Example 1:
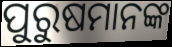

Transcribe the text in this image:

ପୁରୁଷମାନଙ୍କ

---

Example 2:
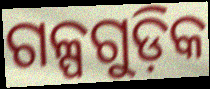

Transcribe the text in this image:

ଗଳ୍ପଗୁଡ଼ିକ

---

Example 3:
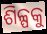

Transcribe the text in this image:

ଶିଳ୍ପକୁ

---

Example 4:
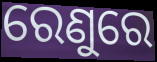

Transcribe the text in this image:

ରେଣୁରେ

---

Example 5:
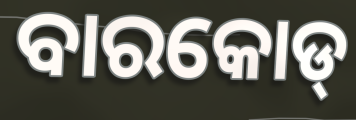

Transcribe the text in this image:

ବାରକୋଡ୍